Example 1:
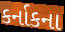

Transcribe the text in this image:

કર્નાકના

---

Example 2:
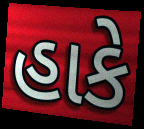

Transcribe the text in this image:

હાકે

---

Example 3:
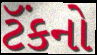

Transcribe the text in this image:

ટૅંકનો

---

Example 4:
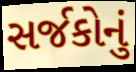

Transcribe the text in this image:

સર્જકોનું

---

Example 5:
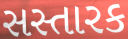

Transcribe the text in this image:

સસ્તારક